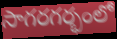
సాగరగర్భంలో